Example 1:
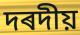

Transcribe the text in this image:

দৰদীয়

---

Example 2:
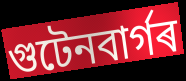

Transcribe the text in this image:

গুটেনবাৰ্গৰ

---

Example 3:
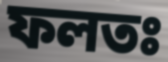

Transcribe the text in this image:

ফলতঃ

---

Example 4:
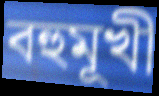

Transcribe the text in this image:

বহুমূখী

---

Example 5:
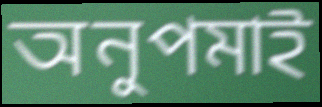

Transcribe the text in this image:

অনুপমাই